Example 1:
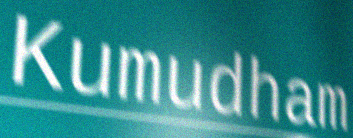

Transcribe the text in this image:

Kumudham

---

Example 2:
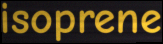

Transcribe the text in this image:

isoprene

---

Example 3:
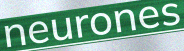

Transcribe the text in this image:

neurones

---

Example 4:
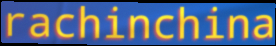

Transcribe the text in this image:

rachinchina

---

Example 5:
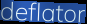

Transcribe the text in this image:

deflator